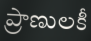
ప్రాణులకీ